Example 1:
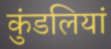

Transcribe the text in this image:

कुंडलियां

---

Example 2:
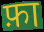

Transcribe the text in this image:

फ़ा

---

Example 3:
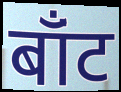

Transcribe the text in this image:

बांँट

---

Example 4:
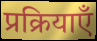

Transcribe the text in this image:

प्रक्रियाएँ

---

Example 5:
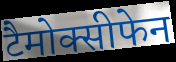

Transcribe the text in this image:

टैमोक्सीफेन